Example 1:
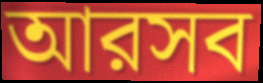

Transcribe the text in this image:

আরসব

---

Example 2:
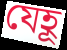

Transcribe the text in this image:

যেহূ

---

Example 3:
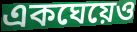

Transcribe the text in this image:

একঘেয়েও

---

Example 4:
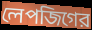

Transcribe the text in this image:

লেপজিগের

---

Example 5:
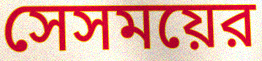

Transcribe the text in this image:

সেসময়ের